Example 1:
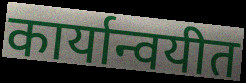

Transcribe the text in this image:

कार्यान्वयीत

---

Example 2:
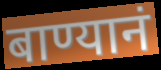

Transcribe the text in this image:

बाण्यानं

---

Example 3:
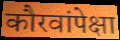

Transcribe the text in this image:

कौरवांपेक्षा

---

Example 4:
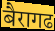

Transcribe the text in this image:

बैरागढ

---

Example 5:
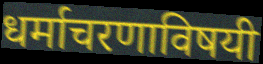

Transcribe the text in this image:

धर्माचरणाविषयी